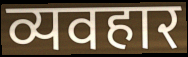
व्यवहार